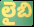
లైబి